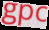
gpc